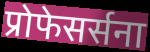
प्रोफेसर्सना